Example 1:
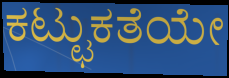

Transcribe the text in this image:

ಕಟ್ಟುಕತೆಯೇ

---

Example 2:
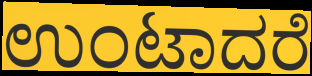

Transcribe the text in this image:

ಉಂಟಾದರೆ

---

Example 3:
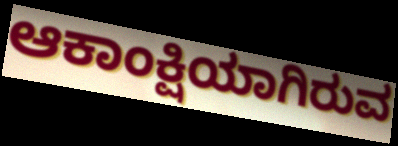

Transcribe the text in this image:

ಆಕಾಂಕ್ಷಿಯಾಗಿರುವ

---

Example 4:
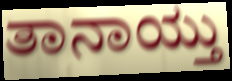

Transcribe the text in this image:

ತಾನಾಯ್ತು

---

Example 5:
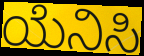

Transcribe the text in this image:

ಯೆನಿಸಿ